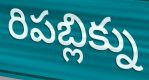
రిపబ్లిక్ను